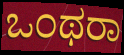
ಒಂಥರಾ